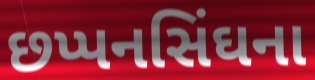
છપ્પનસિંઘના